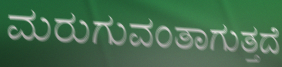
ಮರುಗುವಂತಾಗುತ್ತದೆ